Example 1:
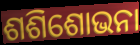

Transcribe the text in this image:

ଶଶିଶୋଭନା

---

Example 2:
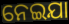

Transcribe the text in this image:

ନେଇଯା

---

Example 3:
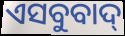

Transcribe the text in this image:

ଏସବୁବାଦ୍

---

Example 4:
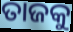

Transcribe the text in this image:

ତାଜକୁ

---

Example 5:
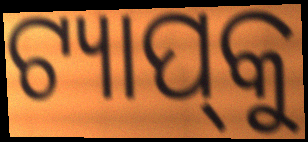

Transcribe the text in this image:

ଟ୍ୟାପ୍‌କୁ